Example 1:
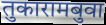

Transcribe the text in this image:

तुकारामबुवा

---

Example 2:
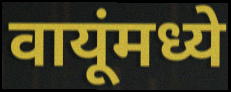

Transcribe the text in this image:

वायूंमध्ये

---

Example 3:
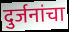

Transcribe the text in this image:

दुर्जनांचा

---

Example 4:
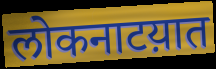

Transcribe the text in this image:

लोकनाटय़ात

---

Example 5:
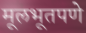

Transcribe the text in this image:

मूलभूतपणे